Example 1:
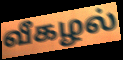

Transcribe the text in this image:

வீகழல்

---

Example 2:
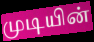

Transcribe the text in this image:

முடியின்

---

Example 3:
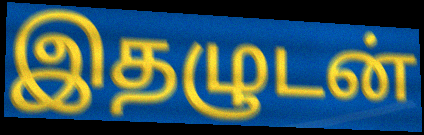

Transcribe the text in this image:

இதழுடன்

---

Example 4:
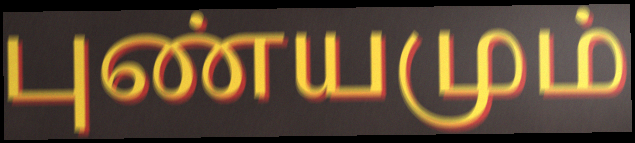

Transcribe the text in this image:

புண்யமும்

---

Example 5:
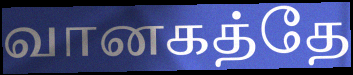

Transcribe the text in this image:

வானகத்தே